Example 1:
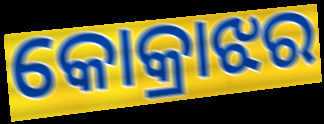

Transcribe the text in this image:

କୋକ୍ରାଝର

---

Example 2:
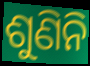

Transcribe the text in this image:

ଶୁଣିନି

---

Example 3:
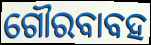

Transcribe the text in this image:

ଗୌରବାବହ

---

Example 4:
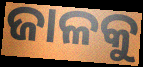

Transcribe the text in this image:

ଜାଳକୁ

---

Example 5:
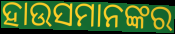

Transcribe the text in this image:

ହାଉସମାନଙ୍କର